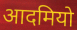
आदमियो